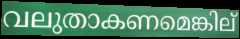
വലുതാകണമെങ്കില്